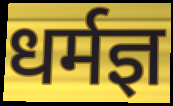
धर्मज्ञ